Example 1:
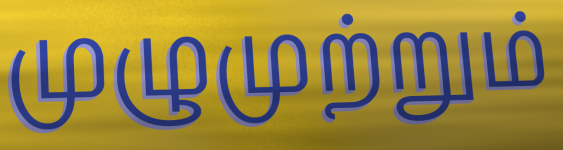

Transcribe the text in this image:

முழுமுற்றும்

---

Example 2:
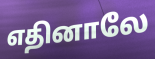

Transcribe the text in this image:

எதினாலே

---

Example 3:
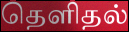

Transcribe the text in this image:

தெளிதல்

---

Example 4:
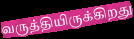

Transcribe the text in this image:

வருத்தியிருக்கிறது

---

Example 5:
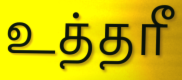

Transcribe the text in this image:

உத்தரீ